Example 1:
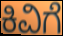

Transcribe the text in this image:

ಕಿವಿಗೆ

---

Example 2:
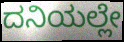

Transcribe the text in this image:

ದನಿಯಲ್ಲೇ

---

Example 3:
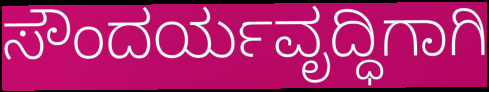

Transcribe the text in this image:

ಸೌಂದರ್ಯವೃದ್ಧಿಗಾಗಿ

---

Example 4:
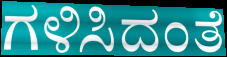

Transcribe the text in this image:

ಗಳಿಸಿದಂತೆ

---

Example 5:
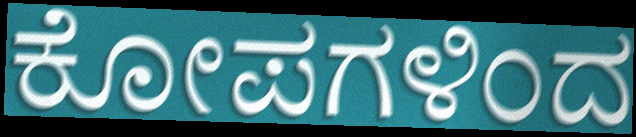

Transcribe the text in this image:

ಕೋಪಗಳಿಂದ